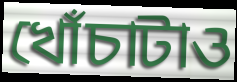
খোঁচাটাও